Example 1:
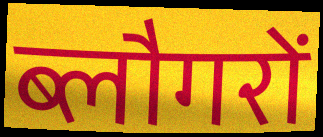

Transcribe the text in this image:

ब्लौगरों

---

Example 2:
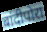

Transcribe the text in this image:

बांदीपोरा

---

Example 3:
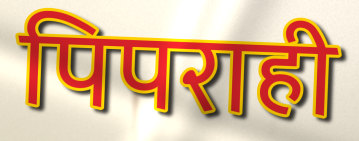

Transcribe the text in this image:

पिपराही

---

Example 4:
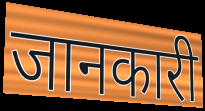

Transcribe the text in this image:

जानकारी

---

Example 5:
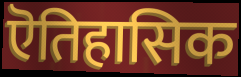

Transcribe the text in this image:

ऎतिहासिक